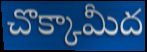
చొక్కామీద